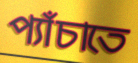
প্যাঁচাতে